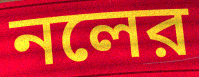
নলের